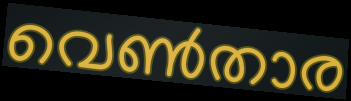
വെൺതാര